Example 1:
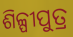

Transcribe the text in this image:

ଶିଳ୍ପୀପୁତ୍ର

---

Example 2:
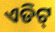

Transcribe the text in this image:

ଏଡିଟ୍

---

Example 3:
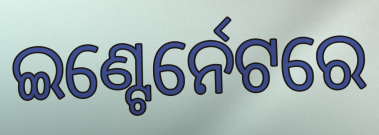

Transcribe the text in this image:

ଇଣ୍ଟେର୍ନେଟରେ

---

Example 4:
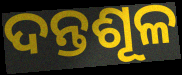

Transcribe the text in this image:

ଦନ୍ତଶୂଳ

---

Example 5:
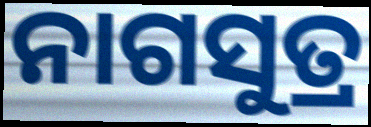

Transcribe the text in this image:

ନାଗସୁତ୍ର